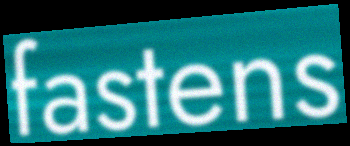
fastens